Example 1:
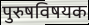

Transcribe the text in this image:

पुरुषविषयक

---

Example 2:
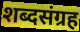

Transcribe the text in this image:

शब्दसंग्रह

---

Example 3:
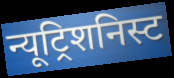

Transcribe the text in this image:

न्‍यूट्रिशनिस्‍ट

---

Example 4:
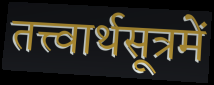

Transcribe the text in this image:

तत्त्वार्थसूत्रमें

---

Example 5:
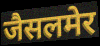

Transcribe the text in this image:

जैसलमेर